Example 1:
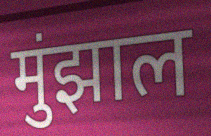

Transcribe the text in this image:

मुंझाल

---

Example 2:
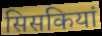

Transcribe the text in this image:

सिसकियां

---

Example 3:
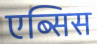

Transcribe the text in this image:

एब्सिस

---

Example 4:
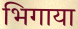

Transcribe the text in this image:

भिगाया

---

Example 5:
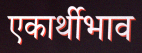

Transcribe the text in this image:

एकार्थीभाव